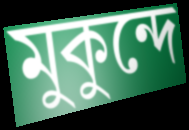
মুকুন্দে